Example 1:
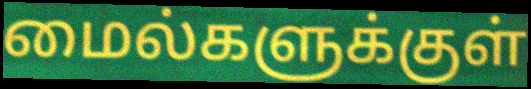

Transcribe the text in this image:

மைல்களுக்குள்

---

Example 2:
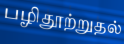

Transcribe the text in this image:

பழிதூற்றுதல்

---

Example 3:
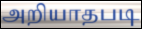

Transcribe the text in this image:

அறியாதபடி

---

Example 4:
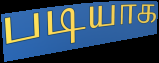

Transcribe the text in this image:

படியாக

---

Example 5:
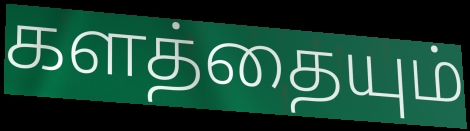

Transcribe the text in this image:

களத்தையும்